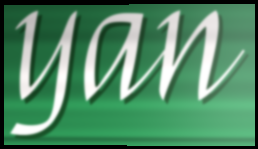
yan